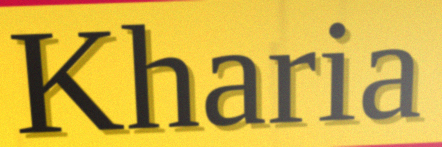
Kharia